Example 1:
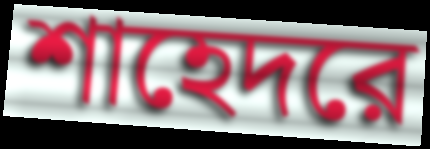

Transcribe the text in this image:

শাহেদরে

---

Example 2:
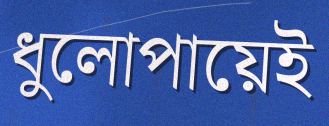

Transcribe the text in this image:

ধুলোপায়েই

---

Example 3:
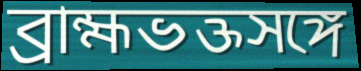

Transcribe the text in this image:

ব্রাহ্মভক্তসঙ্গে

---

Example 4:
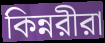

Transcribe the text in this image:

কিন্নরীরা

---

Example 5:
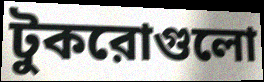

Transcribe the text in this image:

টুকরোগুলো